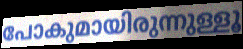
പോകുമായിരുന്നുള്ളൂ